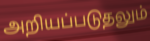
அறியப்படுதலும்